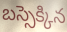
బస్సెక్కిన